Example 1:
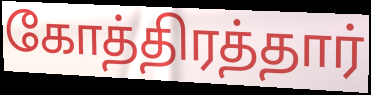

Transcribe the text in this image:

கோத்திரத்தார்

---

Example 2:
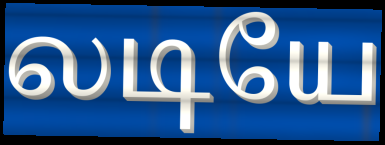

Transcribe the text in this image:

லடியே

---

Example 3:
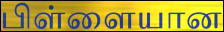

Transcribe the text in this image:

பிள்ளையான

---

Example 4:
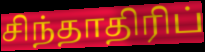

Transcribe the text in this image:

சிந்தாதிரிப்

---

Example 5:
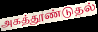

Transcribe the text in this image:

அகத்தூண்டுதல்